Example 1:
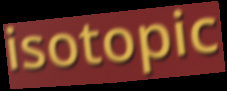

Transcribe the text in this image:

isotopic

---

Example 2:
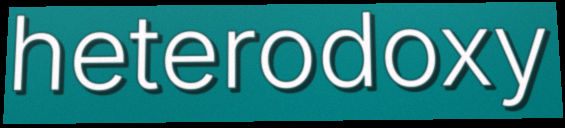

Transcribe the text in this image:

heterodoxy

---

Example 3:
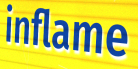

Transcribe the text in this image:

inflame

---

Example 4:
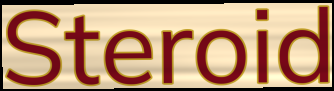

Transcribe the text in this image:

Steroid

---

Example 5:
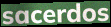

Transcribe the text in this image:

sacerdos